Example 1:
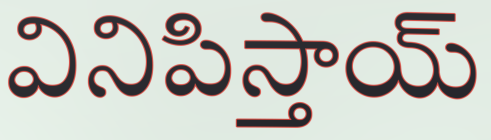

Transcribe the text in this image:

వినిపిస్తాయ్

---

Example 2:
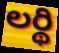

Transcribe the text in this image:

లర్థి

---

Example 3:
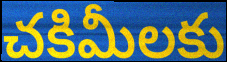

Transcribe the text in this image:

చకిమీలకు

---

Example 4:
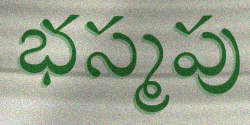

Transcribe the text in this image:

భస్మపు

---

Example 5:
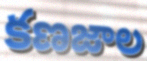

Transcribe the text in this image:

కణజాల